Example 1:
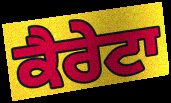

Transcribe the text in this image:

ਕੈਰੇਟਾ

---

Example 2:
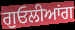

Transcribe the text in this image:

ਗੁਓਲੀਆਂਗ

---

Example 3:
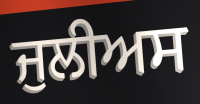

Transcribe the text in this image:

ਜੁਲੀਅਸ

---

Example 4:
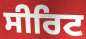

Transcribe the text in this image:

ਸੀਰਿਟ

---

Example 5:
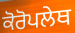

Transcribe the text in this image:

ਕੋਰੋਪਲੇਥ